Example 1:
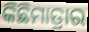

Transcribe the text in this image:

କିଛିମାତ୍ରାର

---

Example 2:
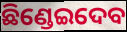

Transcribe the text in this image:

ଛିଣ୍ଡେଇଦେବ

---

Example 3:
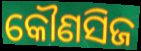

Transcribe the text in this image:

କୌଣସିଜ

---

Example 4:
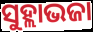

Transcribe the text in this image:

ସୁହ୍ଲାଭଜା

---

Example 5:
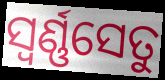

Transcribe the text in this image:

ସ୍ଵର୍ଣ୍ଣସେତୁ